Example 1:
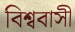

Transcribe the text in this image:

বিশ্ববাসী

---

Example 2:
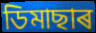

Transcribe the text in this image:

ডিমাছাৰ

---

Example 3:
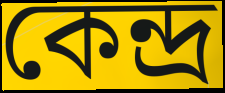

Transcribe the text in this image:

কেন্দ্ৰ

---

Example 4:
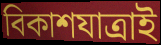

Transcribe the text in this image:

বিকাশযাত্ৰাই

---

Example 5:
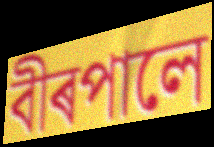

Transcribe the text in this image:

বীৰপালে